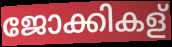
ജോക്കികള്